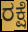
ರಕ್ಷೆ